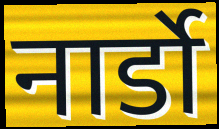
नार्डो